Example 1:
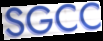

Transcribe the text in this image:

SGCC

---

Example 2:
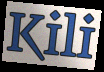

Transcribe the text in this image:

Kili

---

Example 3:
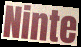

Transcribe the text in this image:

Ninte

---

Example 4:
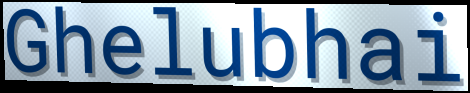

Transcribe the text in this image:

Ghelubhai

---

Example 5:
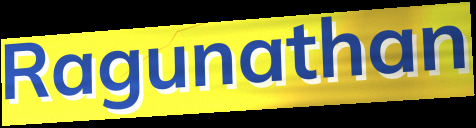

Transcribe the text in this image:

Ragunathan